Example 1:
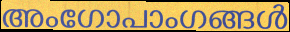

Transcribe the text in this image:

അംഗോപാംഗങ്ങൾ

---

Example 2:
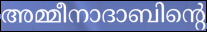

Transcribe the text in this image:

അമ്മീനാദാബിന്റെ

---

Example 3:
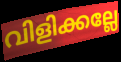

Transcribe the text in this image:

വിളിക്കല്ലേ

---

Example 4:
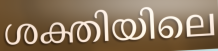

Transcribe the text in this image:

ശക്തിയിലെ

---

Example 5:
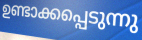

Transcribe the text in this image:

ഉണ്ടാക്കപ്പെടുന്നു